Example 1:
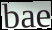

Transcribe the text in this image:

bae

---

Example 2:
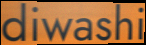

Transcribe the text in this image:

diwashi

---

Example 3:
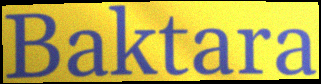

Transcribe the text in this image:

Baktara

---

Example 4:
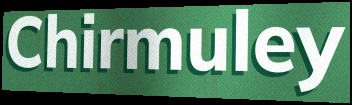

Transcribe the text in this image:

Chirmuley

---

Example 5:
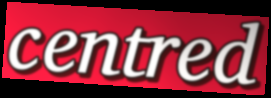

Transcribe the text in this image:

centred